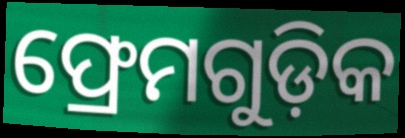
ଫ୍ରେମଗୁଡ଼ିକ